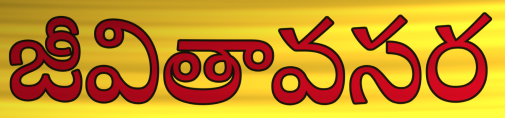
జీవితావసర